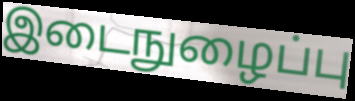
இடைநுழைப்பு